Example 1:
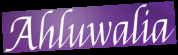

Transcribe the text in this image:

Ahluwalia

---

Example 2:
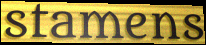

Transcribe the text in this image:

stamens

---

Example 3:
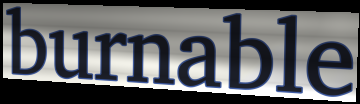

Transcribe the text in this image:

burnable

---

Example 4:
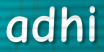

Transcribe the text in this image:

adhi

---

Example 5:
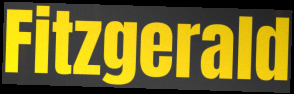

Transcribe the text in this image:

Fitzgerald